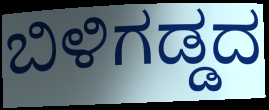
ಬಿಳಿಗಡ್ಡದ